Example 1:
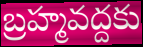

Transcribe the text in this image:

బ్రహ్మవద్దకు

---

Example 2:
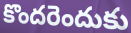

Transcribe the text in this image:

కొందరెందుకు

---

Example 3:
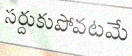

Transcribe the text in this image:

సర్దుకుపోవటమే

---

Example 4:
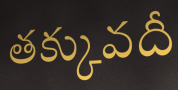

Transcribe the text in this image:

తక్కువదీ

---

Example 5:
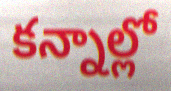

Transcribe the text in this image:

కన్నాల్లో